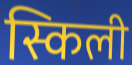
स्किली